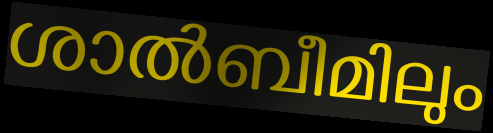
ശാൽബീമിലും